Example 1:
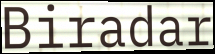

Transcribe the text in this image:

Biradar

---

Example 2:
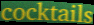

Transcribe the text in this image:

cocktails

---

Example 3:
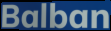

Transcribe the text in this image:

Balban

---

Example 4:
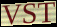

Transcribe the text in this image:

VST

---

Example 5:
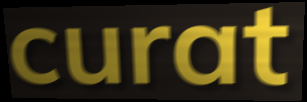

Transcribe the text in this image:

curat